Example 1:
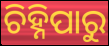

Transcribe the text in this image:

ଚିହ୍ନିପାରୁ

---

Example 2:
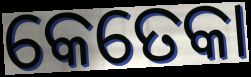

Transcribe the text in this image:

କେତେକା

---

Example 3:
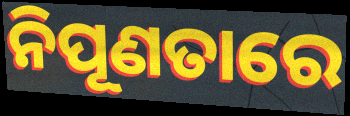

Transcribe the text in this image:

ନିପୂଣତାରେ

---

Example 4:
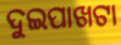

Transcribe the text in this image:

ଦୁଇପାଖଟା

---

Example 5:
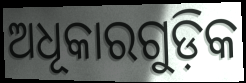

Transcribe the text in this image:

ଅଧୂକାରଗୁଡ଼ିକ